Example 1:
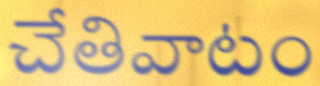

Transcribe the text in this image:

చేతివాటం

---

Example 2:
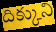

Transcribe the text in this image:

దిక్కుని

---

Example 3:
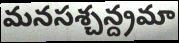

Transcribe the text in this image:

మనసశ్చన్ద్రమా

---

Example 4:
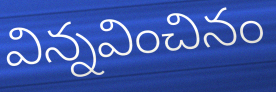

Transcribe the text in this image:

విన్నవించినం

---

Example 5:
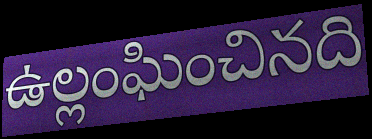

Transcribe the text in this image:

ఉల్లంఘించినది